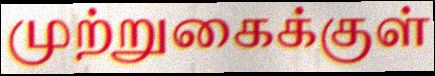
முற்றுகைக்குள்